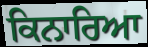
ਕਿਨਾਰਿਆ